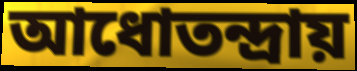
আধোতন্দ্রায়